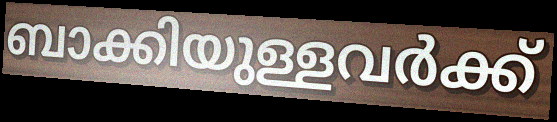
ബാക്കിയുള്ളവർക്ക്